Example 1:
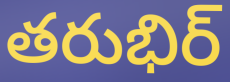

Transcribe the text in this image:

తరుభిర్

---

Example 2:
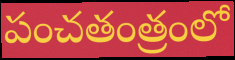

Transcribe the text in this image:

పంచతంత్రంలో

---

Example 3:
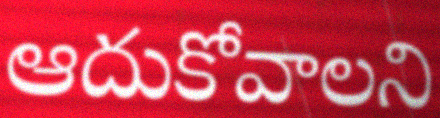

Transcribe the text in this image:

ఆదుకోవాలని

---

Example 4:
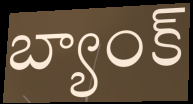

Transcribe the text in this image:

బ్యాంక్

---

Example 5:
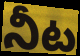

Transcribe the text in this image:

నీట